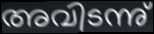
അവിടന്നു്